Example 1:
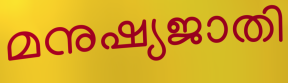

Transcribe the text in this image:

മനുഷ്യജാതി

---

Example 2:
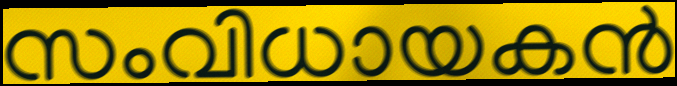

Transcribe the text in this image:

സംവിധായകൻ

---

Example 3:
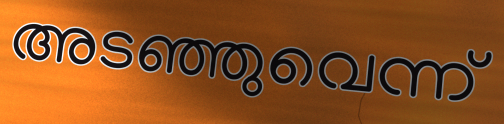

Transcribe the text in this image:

അടഞ്ഞുവെന്ന്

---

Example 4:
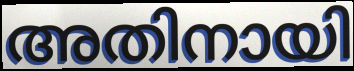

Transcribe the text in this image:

അതിനായി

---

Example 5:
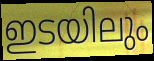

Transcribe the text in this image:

ഇടയിലും